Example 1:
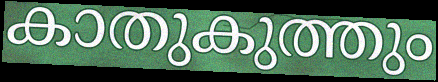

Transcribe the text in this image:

കാതുകുത്തും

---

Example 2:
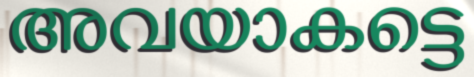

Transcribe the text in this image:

അവയാകട്ടെ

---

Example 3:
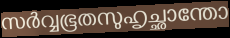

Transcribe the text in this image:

സർവ്വഭൂതസുഹൃച്ഛാന്തോ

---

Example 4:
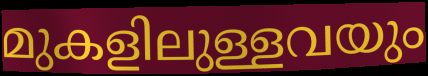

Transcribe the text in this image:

മുകളിലുള്ളവയും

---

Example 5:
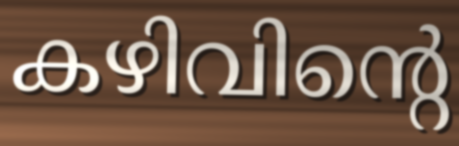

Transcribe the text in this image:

കഴിവിന്റെ